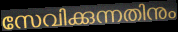
സേവിക്കുന്നതിനും